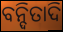
ବନ୍ଦିତାଦି